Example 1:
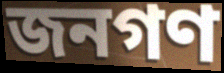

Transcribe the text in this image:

জনগণ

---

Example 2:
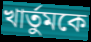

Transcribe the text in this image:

খার্তুমকে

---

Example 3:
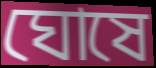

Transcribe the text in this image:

ঘোষে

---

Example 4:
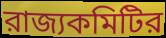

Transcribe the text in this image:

রাজ্যকমিটির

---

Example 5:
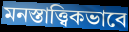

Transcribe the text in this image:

মনস্তাত্ত্বিকভাবে